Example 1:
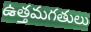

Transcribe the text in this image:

ఉత్తమగతులు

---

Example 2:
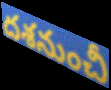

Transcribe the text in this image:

దశనుంచీ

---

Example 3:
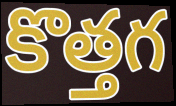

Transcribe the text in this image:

కొత్తగ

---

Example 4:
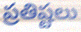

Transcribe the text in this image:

ప్రతిష్టలు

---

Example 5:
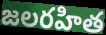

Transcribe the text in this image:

జలరహిత